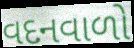
વદનવાળો